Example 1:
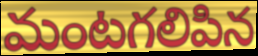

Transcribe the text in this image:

మంటగలిపిన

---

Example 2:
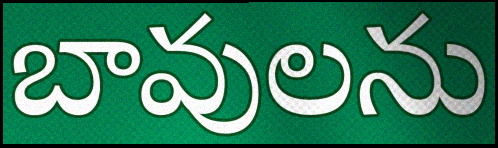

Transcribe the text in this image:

బావులను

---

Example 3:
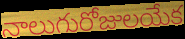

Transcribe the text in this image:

నాలుగురోజులయేక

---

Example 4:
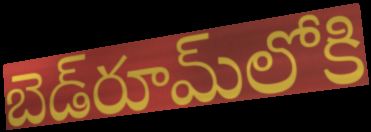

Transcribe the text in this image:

బెడ్‌రూమ్‌లోకి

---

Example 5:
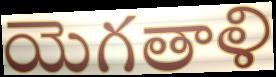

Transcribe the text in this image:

యెగతాళి